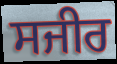
ਸਜੀਰ